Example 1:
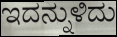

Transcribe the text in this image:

ಇದನ್ನುಳಿದು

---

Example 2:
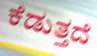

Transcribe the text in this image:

ಕೆಡುತ್ತದೆ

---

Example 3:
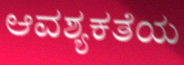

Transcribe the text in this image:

ಆವಶ್ಯಕತೆಯ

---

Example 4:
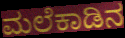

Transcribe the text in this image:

ಮಲೆಕಾಡಿನ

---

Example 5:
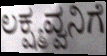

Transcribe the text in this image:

ಲಕ್ಷ್ಮವ್ವನಿಗೆ